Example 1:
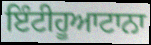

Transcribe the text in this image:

ਇੰਟੀਹੂਆਟਾਨਾ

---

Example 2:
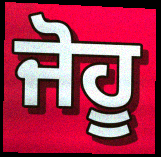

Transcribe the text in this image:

ਜੋਹੂ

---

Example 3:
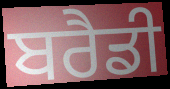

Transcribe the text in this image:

ਬਰੈਡੀ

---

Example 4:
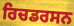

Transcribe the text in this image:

ਰਿਚਡਰਸਨ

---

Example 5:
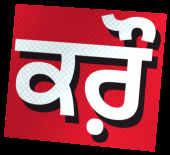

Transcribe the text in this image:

ਕਰ਼ੌ